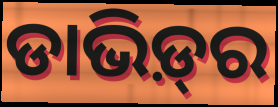
ଡାଭିଡ଼୍‍ର